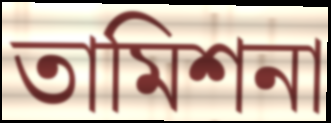
তামিশনা